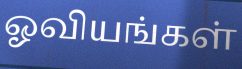
ஓவியங்கள்